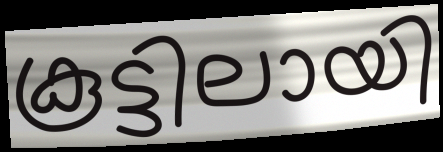
കൂട്ടിലായി